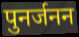
पुनर्जनन